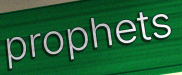
prophets